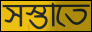
সস্তাতে